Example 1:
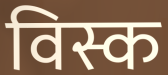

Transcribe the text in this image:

विस्क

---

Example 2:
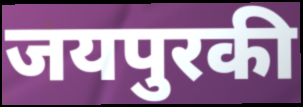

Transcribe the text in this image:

जयपुरकी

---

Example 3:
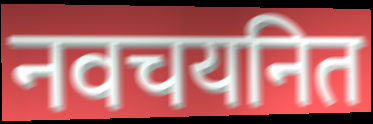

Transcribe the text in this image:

नवचयनित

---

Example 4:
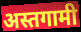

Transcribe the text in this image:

अस्तगामी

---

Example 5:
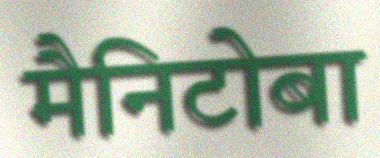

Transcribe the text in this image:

मैनिटोबा